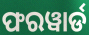
ଫରୱାର୍ଡ